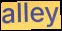
alley